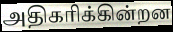
அதிகரிக்கின்றன